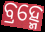
ବ୍ରହ୍ମେ